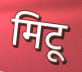
मिटू